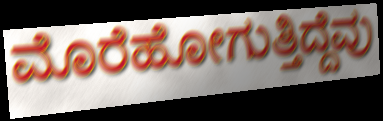
ಮೊರೆಹೋಗುತ್ತಿದ್ದೆವು